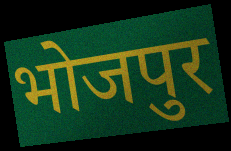
भोजपुर